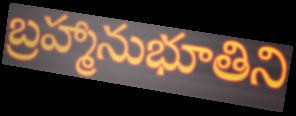
బ్రహ్మానుభూతిని